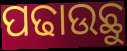
ପଢାଉଛୁ